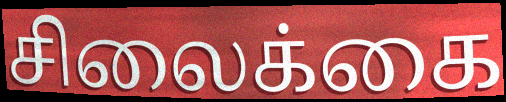
சிலைக்கை